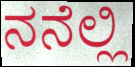
ನನೆಲ್ಲಿ